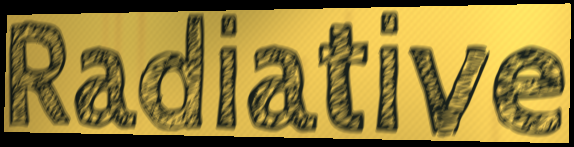
Radiative